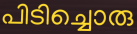
പിടിച്ചൊരു